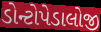
ડોન્ટોપેડાલોજી